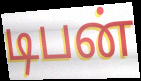
டிபன்